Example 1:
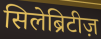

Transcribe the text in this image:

सिलेब्रिटीज़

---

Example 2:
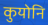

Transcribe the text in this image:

कुयोनि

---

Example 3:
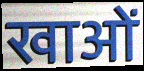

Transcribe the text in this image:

खाओं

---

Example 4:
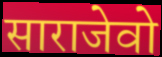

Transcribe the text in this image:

साराजेवो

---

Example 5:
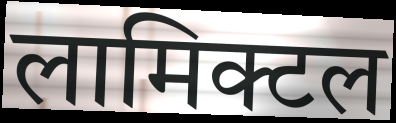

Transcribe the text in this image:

लामिक्टल